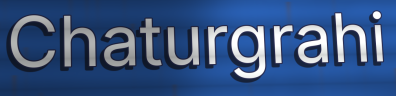
Chaturgrahi